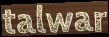
talwar